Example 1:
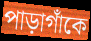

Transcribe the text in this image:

পাড়াগাঁকে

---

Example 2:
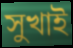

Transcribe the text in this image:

সুখাই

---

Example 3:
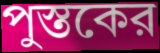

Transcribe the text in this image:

পুস্তকের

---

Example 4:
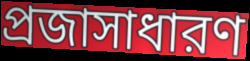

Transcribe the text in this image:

প্রজাসাধারণ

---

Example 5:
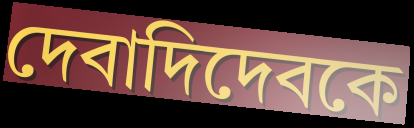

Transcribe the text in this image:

দেবাদিদেবকে